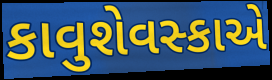
કાવુશેવસ્કાએ